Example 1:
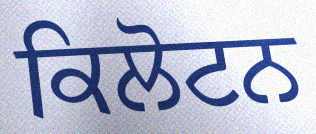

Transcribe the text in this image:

ਕਿਲੋਟਨ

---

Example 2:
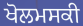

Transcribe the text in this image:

ਖੋਲਮਸਕੀ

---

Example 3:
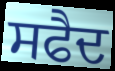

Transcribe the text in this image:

ਸਫੈਦ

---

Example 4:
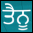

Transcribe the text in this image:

ਤੈਨੂ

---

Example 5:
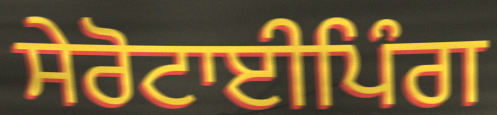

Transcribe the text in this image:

ਸੇਰੋਟਾਈਪਿੰਗ